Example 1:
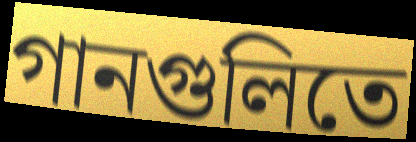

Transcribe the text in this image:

গানগুলিতে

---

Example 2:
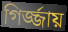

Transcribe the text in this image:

গির্জ্জায়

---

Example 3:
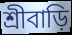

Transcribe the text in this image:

শ্রীবাড়ি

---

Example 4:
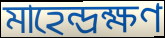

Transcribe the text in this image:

মাহেন্দ্রক্ষণ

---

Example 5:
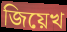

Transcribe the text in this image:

জিয়েখ